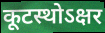
कूटस्थोऽक्षर